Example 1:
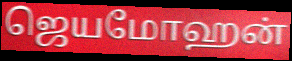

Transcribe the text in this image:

ஜெயமோஹன்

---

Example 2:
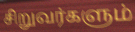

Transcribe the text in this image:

சிறுவர்களும்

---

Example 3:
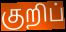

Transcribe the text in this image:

குறிப்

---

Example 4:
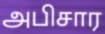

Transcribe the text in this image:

அபிசார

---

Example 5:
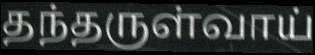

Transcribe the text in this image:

தந்தருள்வாய்